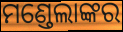
ମଣ୍ଡେଲାଙ୍କର